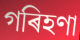
গৰিহণা